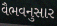
વૈભવનુસાર